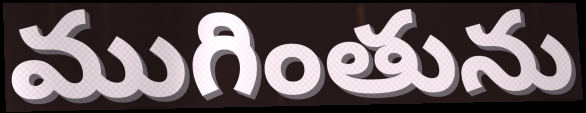
ముగింతును